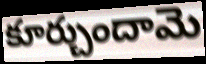
కూర్చుందామె